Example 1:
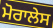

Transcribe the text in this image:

ਮੋਰਾਲੇਸ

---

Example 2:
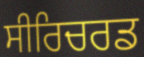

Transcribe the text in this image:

ਸੀਰਿਚਰਡ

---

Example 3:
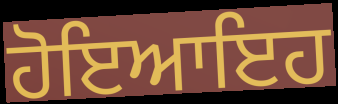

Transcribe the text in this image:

ਹੋਇਆਇਹ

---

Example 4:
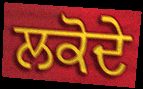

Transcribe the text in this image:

ਲਕੋਦੇ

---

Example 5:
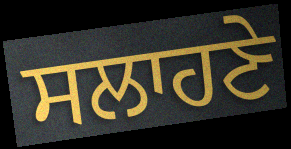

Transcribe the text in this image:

ਸਲਾਹਣੇ